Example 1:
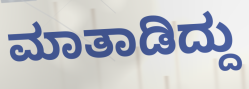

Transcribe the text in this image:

ಮಾತಾಡಿದ್ದು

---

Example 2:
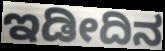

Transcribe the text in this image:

ಇಡೀದಿನ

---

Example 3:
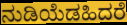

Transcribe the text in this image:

ನುಡಿಯೆಡಹಿದರೆ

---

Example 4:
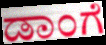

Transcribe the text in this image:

ಡಾಂಗೆ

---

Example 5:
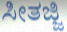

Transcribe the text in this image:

ಸೀತಜ್ಜಿ